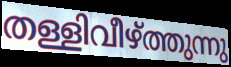
തള്ളിവീഴ്ത്തുന്നു